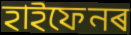
হাইফেনৰ